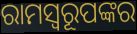
ରାମସ୍ୱରୂପଙ୍କର